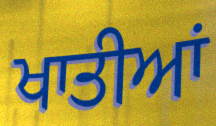
ਖਾਤੀਆਂ